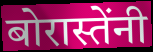
बोरास्तेंनी